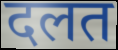
दलत